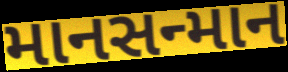
માનસન્માન